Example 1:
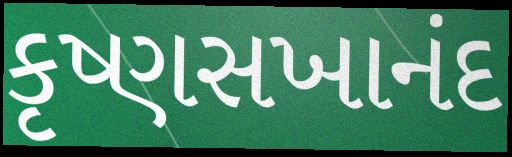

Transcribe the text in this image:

કૃષ્ણસખાનંદ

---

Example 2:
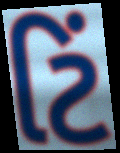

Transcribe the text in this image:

ટિં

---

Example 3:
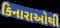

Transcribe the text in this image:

કિનારાઓથી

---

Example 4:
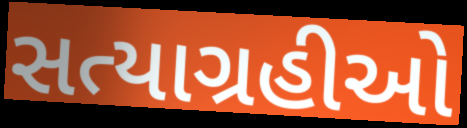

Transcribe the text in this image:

સત્યાગ્રહીઓ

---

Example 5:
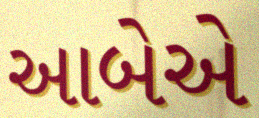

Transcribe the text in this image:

આબેએ